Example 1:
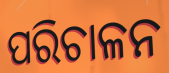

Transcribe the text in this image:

ପରିଚାଳନ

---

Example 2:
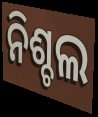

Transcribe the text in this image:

ନିଶ୍ଚଲ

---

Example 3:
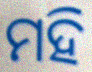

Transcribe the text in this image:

ମହି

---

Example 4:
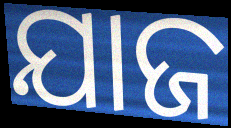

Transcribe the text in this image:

ଯାଜ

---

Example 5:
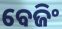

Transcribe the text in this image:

ବେଜିଂ